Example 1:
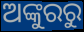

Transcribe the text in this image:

ଅଙ୍କୁରରୁ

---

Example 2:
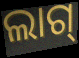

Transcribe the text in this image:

ଲାଗ୍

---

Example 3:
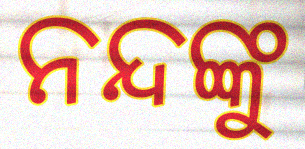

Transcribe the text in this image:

ନନ୍ଦଙ୍କୁ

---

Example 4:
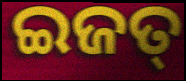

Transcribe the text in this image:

ଇଜତ୍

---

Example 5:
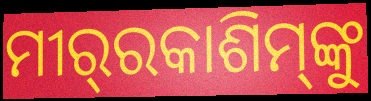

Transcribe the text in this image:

ମୀର୍‌ରକାଶିମ୍‌ଙ୍କୁ